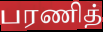
பரணித்